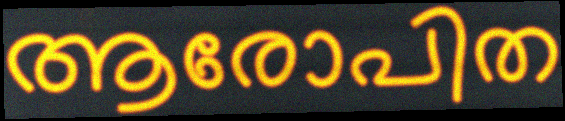
ആരോപിത